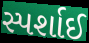
સ્પર્શાઈ